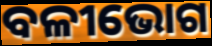
ବଳୀଭୋଗ